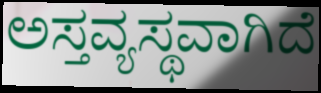
ಅಸ್ತವ್ಯಸ್ಥವಾಗಿದೆ